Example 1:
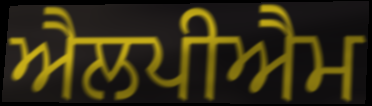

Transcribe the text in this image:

ਐਲਪੀਐਮ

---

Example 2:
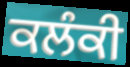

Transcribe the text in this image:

ਕਲੰਕੀ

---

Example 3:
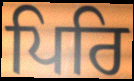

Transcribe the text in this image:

ਪਿਰਿ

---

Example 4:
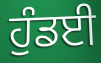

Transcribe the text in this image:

ਹੁੰਡਈ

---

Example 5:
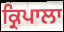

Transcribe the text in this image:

ਕ੍ਰਿਪਾਲਾ